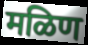
मळिण